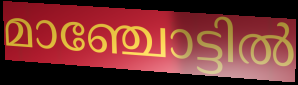
മാഞ്ചോട്ടിൽ